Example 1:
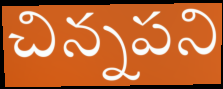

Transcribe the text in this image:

చిన్నపని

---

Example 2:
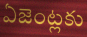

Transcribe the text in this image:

ఏజెంట్లకు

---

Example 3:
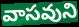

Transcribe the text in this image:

వాసవుని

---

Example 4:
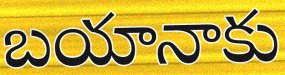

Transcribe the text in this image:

బయానాకు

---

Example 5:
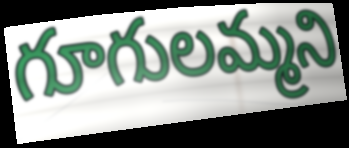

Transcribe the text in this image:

గూగులమ్మని